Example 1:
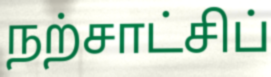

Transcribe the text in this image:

நற்சாட்சிப்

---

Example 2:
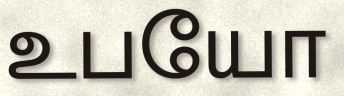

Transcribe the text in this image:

உபயோ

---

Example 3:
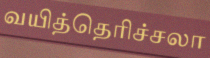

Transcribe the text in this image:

வயித்தெரிச்சலா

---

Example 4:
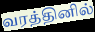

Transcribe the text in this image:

வரத்தினில்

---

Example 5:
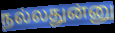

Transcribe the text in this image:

நல்லதுன்னு